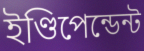
ইণ্ডিপেন্ডেন্ট